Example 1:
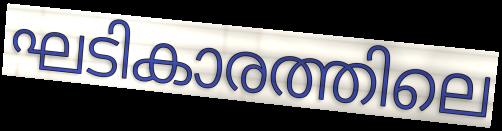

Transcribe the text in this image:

ഘടികാരത്തിലെ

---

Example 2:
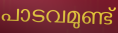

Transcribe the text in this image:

പാടവമുണ്ട്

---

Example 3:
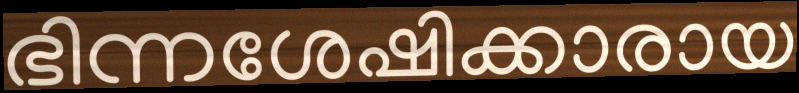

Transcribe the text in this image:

ഭിന്നശേഷിക്കാരായ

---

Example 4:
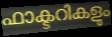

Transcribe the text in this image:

ഫാക്ടറികളും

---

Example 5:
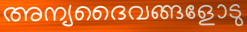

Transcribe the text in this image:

അന്യദൈവങ്ങളോടു